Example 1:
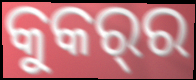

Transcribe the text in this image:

କୁକର୍‌ର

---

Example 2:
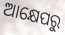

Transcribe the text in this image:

ଆକ୍ଷେପରୁ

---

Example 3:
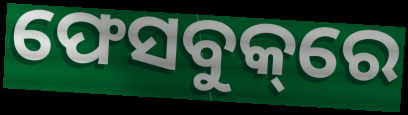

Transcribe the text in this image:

ଫେସବୁକ୍‌ରେ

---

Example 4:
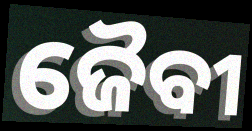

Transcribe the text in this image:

ଜୈବୀ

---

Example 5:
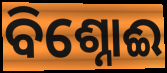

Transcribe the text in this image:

ବିଶ୍ନୋଈ